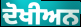
ਦੋਖੀਅਨ